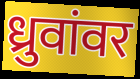
ध्रुवांवर